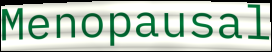
Menopausal